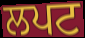
ਲਪਟ